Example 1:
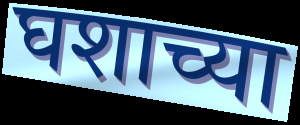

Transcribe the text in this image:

घशाच्या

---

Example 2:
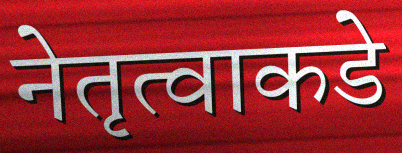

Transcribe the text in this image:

नेतृत्वाकडे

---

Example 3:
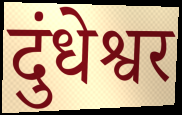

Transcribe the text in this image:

दुंधेश्वर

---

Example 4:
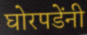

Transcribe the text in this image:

घोरपडेंनी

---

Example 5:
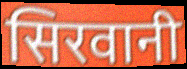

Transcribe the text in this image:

सिरवानी